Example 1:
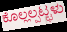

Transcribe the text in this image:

ಕೊಲ್ಲಲ್ಪಟ್ಟಳು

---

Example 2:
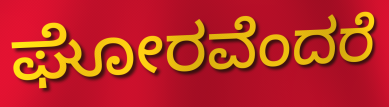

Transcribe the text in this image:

ಘೋರವೆಂದರೆ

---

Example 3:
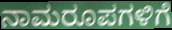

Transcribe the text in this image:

ನಾಮರೂಪಗಳಿಗೆ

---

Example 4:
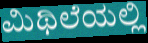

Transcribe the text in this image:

ಮಿಥಿಲೆಯಲ್ಲಿ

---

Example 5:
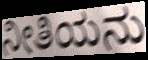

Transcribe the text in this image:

ನೀತಿಯನು